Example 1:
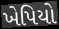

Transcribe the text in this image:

ખેપિયો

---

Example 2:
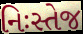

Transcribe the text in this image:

નિઃસ્તેજ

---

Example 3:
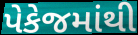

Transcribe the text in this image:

પેકેજમાંથી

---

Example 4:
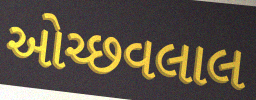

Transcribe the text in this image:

ઓચ્છવલાલ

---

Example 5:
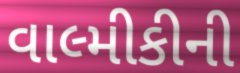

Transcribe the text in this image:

વાલ્મીકીની